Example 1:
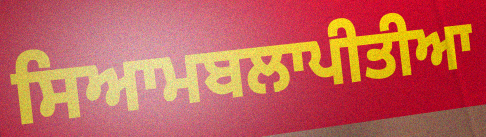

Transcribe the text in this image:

ਸਿਆਮਬਲਾਪੀਤੀਆ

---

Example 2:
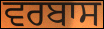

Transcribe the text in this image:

ਵਰਬਾਸ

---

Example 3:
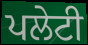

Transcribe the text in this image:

ਪਲੇਟੀ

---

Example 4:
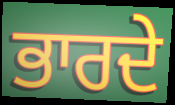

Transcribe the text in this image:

ਭਾਰਦੇ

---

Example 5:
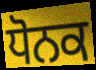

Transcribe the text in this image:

ਧੋਨਕ